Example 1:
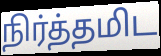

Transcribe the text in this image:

நிர்த்தமிட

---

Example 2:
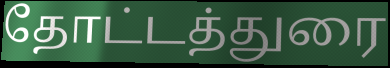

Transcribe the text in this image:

தோட்டத்துரை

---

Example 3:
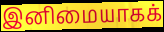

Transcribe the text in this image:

இனிமையாகக்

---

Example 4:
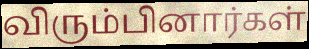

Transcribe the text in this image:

விரும்பினார்கள்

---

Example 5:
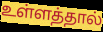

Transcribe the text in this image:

உள்ளத்தால்